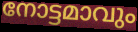
നോട്ടമാവും